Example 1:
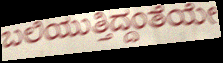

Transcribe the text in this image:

ಬಲಿಯುತ್ತಿದ್ದಂತೆಯೇ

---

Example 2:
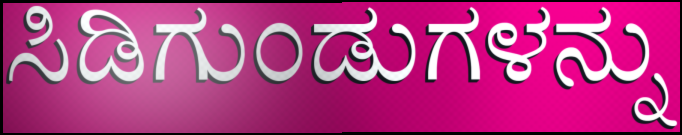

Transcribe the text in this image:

ಸಿಡಿಗುಂಡುಗಳನ್ನು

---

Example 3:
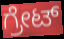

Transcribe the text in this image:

ಗ್ರೇಟ್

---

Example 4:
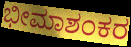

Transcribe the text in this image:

ಭೀಮಾಶಂಕರ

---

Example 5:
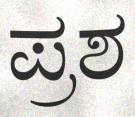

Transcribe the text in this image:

ಪ್ರಶ